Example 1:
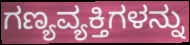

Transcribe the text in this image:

ಗಣ್ಯವ್ಯಕ್ತಿಗಳನ್ನು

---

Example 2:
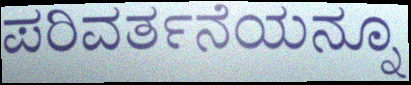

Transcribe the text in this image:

ಪರಿವರ್ತನೆಯನ್ನೂ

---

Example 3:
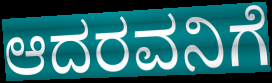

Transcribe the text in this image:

ಆದರವನಿಗೆ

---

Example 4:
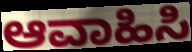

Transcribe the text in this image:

ಆವಾಹಿಸಿ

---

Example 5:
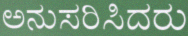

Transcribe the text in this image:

ಅನುಸರಿಸಿದರು